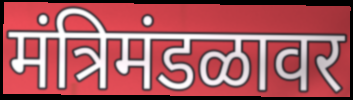
मंत्रिमंडळावर